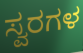
ಸ್ವರಗಳ